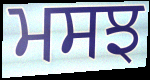
ਮਸਝ